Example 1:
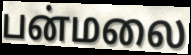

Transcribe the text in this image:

பன்மலை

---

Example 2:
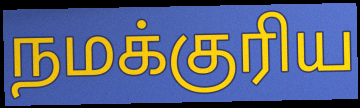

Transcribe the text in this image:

நமக்குரிய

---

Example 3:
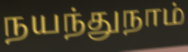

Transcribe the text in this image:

நயந்துநாம்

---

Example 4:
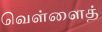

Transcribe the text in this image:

வெள்ளைத்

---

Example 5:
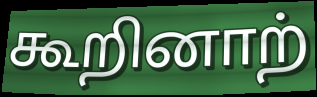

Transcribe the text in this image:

கூறினாற்